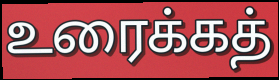
உரைக்கத்